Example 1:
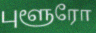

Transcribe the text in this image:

புளூரோ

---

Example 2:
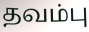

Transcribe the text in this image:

தவம்பு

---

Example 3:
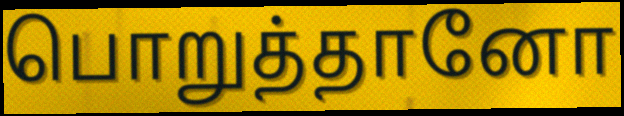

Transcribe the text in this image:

பொறுத்தானோ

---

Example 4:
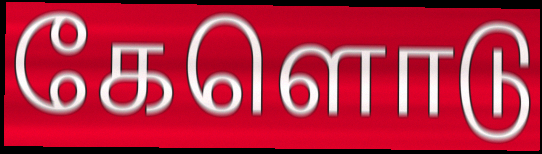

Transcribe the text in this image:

கேளொடு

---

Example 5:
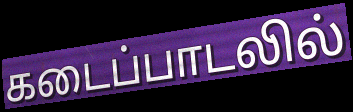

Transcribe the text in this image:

கடைப்பாடலில்